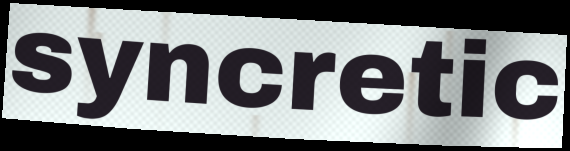
syncretic